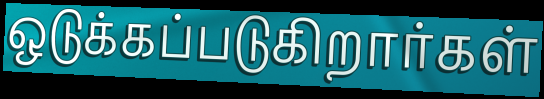
ஒடுக்கப்படுகிறார்கள்